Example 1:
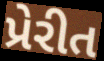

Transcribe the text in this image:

પ્રેરીત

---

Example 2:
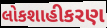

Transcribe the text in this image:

લોકશાહીકરણ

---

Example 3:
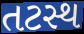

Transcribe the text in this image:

તટસ્થ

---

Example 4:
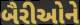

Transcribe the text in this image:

બૈરીઓને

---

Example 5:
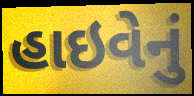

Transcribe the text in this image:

હાઇવેનું